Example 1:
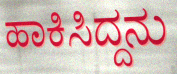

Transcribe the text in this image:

ಹಾಕಿಸಿದ್ದನು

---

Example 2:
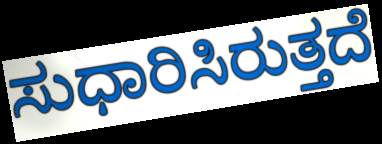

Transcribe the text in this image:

ಸುಧಾರಿಸಿರುತ್ತದೆ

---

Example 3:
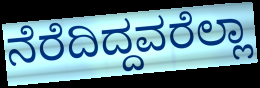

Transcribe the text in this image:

ನೆರೆದಿದ್ದವರೆಲ್ಲಾ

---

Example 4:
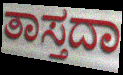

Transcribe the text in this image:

ತಾಸ್ತದಾ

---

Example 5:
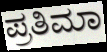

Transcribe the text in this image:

ಪ್ರತಿಮಾ